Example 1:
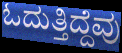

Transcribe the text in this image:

ಓದುತ್ತಿದ್ದೆವು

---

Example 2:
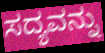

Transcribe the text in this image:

ಸದ್ಯವನ್ನು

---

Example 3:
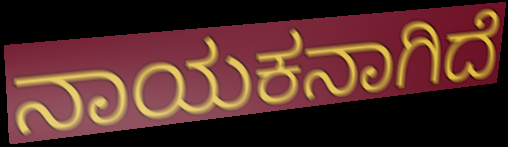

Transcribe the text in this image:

ನಾಯಕನಾಗಿದೆ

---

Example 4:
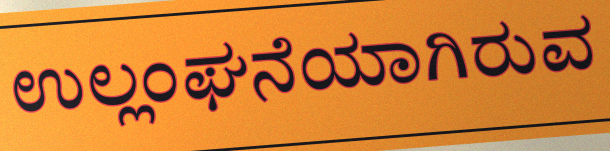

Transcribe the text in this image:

ಉಲ್ಲಂಘನೆಯಾಗಿರುವ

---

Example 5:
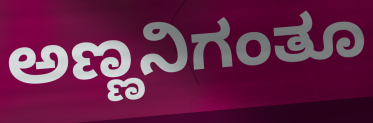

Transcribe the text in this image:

ಅಣ್ಣನಿಗಂತೂ